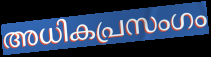
അധികപ്രസംഗം